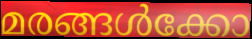
മരങ്ങൾക്കോ